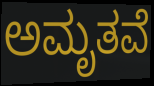
ಅಮೃತವೆ